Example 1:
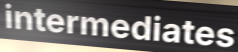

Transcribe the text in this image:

intermediates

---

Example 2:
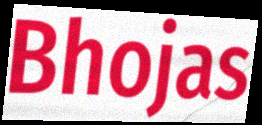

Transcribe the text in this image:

Bhojas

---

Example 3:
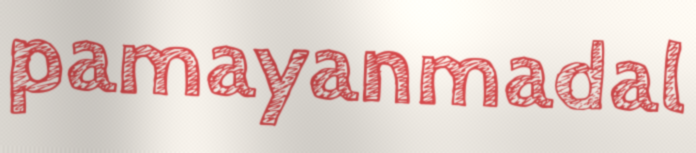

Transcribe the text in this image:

pamayanmadal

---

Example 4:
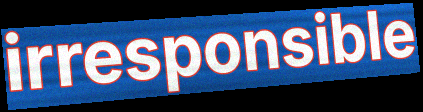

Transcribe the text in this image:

irresponsible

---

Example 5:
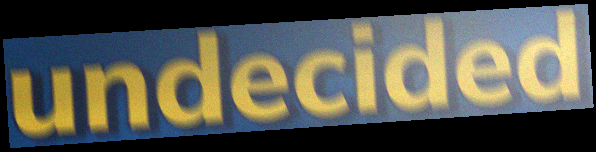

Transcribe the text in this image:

undecided